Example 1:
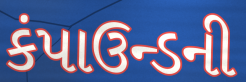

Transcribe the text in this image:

કંપાઉન્ડની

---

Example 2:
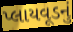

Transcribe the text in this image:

પ્લાયવૂડનું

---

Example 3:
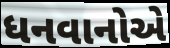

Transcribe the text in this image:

ધનવાનોએ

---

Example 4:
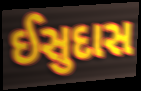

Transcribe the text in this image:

ઈસુદાસ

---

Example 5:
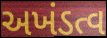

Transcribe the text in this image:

અખંડત્વ